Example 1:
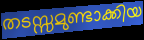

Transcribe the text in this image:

തടസ്സമുണ്ടാക്കിയ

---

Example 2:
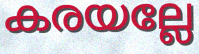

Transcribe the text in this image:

കരയല്ലേ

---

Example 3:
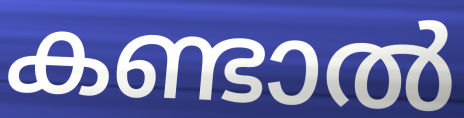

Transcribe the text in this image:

കണ്ടാൽ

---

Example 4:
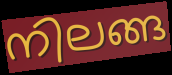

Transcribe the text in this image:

നിലങ്ങ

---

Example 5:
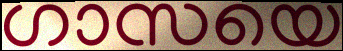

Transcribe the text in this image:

ഗാസയെ